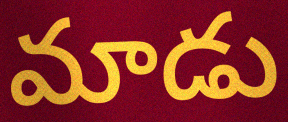
మాడు